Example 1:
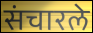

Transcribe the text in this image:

संचारले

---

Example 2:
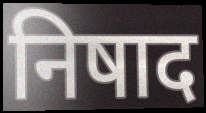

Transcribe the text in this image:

निषाद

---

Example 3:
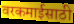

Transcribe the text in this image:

वरकमाईसाठी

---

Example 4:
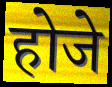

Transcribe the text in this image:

होजे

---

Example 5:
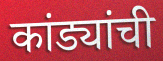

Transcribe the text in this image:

कांड्यांची